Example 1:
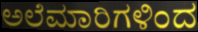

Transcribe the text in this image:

ಅಲೆಮಾರಿಗಳಿಂದ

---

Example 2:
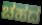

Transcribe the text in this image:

ಚಹದ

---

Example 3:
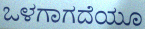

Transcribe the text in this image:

ಒಳಗಾಗದೆಯೂ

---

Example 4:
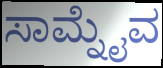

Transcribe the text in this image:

ಸಾಮ್ನೈವ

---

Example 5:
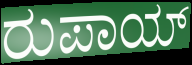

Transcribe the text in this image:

ರುಪಾಯ್